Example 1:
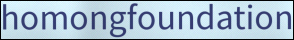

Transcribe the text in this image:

homongfoundation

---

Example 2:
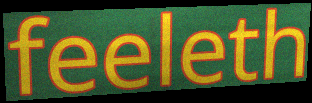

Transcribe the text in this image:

feeleth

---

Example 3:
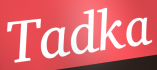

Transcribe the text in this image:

Tadka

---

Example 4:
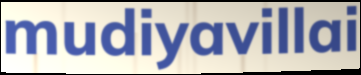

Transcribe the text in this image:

mudiyavillai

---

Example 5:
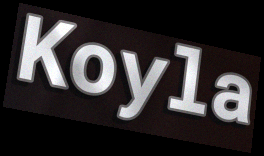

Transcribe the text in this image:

Koyla